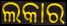
ଲକାର